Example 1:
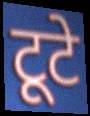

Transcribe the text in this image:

टूटे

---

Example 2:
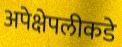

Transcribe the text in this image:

अपेक्षेपलीकडे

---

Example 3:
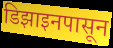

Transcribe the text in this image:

डिझाइनपासून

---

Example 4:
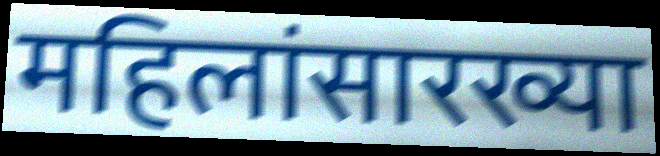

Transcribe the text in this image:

महिलांसारख्या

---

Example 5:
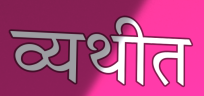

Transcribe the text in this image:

व्यथीत